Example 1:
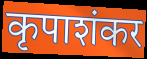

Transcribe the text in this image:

कृपाशंकर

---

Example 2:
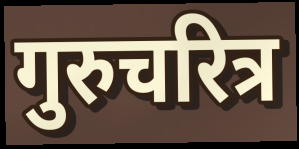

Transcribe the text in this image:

गुरुचरित्र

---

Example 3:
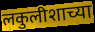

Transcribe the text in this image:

लकुलीशाच्या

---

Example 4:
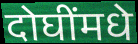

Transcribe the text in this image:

दोघींमधे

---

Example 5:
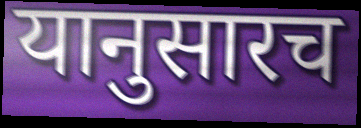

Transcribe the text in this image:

यानुसारच